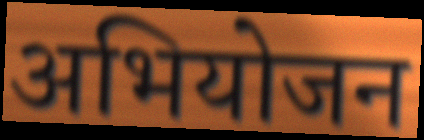
अभियोजन